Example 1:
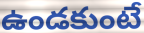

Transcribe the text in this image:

ఉండకుంటే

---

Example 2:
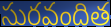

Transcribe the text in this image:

సురవందిత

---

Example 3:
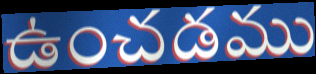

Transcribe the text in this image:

ఉంచడము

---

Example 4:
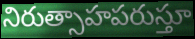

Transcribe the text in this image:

నిరుత్సాహపరుస్తూ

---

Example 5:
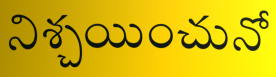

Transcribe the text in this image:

నిశ్చయించునో